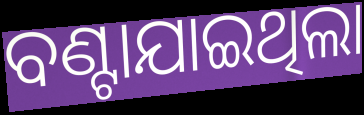
ବଣ୍ଟାଯାଇଥିଲା